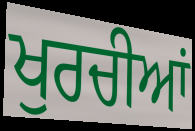
ਖੁਰਚੀਆਂ